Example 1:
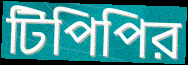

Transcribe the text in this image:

টিপিপির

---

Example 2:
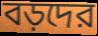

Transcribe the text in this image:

বড়দের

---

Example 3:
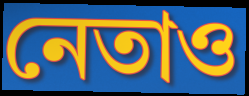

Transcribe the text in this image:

নেতাও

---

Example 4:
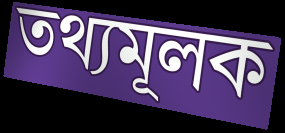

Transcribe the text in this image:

তথ্যমূলক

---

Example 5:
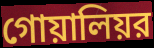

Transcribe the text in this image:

গোয়ালিয়র